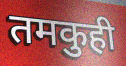
तमकुही